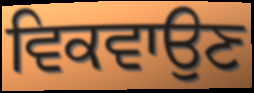
ਵਿਕਵਾਉਣ